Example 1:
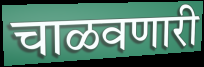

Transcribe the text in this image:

चाळवणारी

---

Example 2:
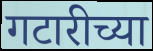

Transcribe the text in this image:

गटारीच्या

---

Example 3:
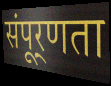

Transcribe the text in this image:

संपूर्णता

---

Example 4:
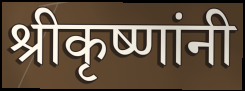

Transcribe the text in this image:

श्रीकृष्णांनी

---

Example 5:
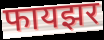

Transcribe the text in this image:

फायझर